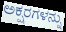
ಅಕ್ಷರಗಳನ್ನು